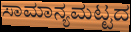
ಸಾಮಾನ್ಯಮಟ್ಟದ